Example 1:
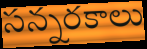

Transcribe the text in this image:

సన్నరకాలు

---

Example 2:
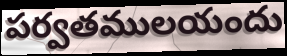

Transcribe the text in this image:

పర్వతములయందు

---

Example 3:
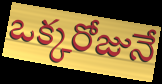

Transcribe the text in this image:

ఒక్కరోజునే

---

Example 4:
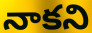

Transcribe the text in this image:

నాకని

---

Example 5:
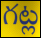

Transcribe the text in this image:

గట్ల